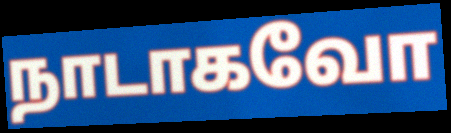
நாடாகவோ